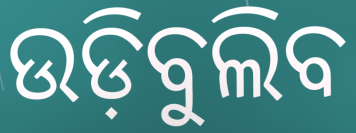
ଉଡ଼ିବୁଲିବ